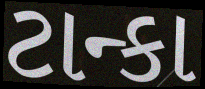
ટાન્કા